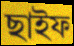
ছাইফ